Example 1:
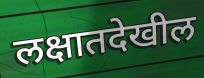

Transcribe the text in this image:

लक्षातदेखील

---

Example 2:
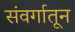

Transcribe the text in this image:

संवर्गातून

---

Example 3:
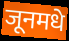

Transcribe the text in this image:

जूनमधे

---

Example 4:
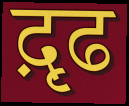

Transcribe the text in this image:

द़ृढ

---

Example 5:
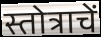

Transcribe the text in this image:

स्तोत्राचें